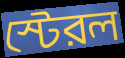
স্টেরল